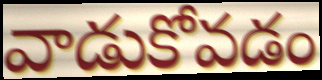
వాడుకోవడం